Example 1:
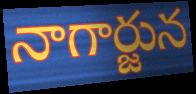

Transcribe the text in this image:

నాగార్జున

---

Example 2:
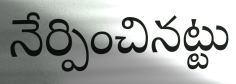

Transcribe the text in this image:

నేర్పించినట్టు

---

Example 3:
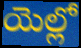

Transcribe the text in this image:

యెల్లో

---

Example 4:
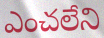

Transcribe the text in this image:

ఎంచలేని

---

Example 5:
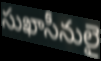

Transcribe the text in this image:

సుఖాసీనులై